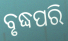
ବୃଦ୍ଧପରି